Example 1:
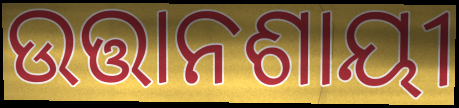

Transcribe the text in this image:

ଉତ୍ତାନଶାୟୀ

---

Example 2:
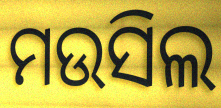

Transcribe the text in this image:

ମଉସିଲ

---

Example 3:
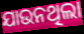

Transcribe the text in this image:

ଯାଉନଥିଲା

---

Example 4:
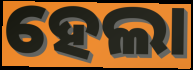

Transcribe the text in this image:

ହେଲା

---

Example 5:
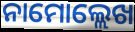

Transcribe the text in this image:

ନାମୋଲ୍ଲେଖ